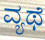
ವ್ಯಥೆ